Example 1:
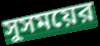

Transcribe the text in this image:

সুসময়ের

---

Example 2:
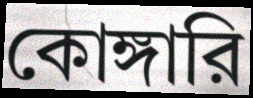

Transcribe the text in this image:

কোঙ্গারি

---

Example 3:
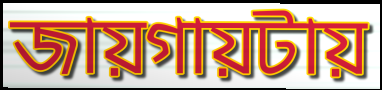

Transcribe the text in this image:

জায়গায়টায়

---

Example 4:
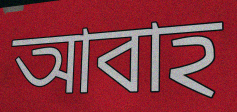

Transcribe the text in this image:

আবাহ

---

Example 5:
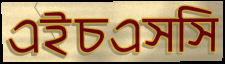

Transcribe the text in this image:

এইচএসসি